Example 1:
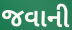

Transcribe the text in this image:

જવાની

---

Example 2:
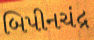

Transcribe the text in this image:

બિપીનચંદ્ર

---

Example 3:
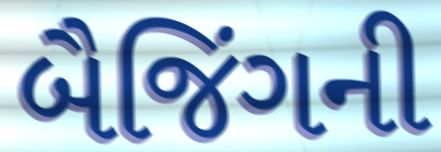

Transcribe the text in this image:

બૈજિંગની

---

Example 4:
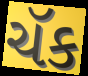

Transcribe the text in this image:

ચૅક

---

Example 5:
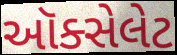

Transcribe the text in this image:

ઑક્સેલેટ